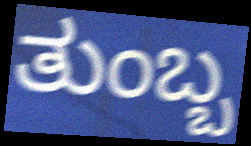
ತುಂಬ್ಬ